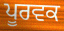
ਪੂਰਵਕ